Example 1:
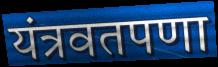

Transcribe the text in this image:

यंत्रवतपणा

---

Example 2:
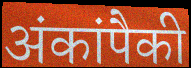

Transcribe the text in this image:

अंकांपैकी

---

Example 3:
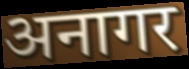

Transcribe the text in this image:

अनागर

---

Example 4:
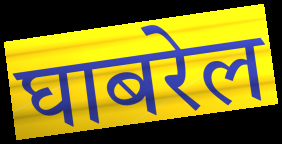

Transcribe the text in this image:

घाबरेल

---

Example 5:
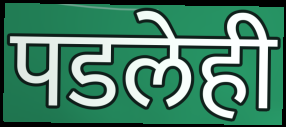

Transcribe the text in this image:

पडलेही